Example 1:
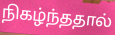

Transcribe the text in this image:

நிகழ்ந்ததால்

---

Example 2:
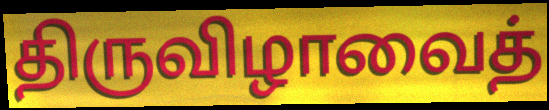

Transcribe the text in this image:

திருவிழாவைத்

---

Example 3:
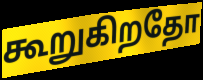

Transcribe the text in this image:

கூறுகிறதோ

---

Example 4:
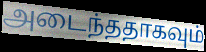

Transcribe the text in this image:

அடைந்ததாகவும்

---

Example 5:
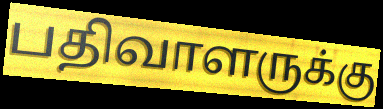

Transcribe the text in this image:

பதிவாளருக்கு